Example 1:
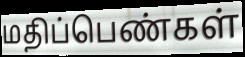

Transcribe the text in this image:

மதிப்பெண்கள்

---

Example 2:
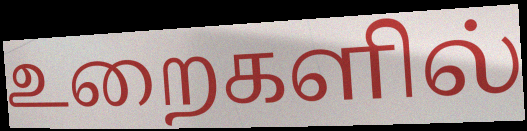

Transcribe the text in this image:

உறைகளில்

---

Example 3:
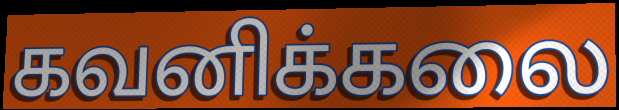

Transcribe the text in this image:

கவனிக்கலை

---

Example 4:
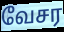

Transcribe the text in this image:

வேசர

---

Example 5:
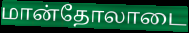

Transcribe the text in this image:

மான்தோலாடை